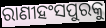
ରାଣୀହଂସପୁରକୁ